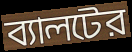
ব্যালটের